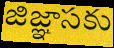
జిజ్ఞాసకు